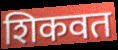
शिकवत